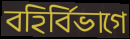
বহির্বিভাগে